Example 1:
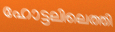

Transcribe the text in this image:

ഹോട്ടലിലെത്തി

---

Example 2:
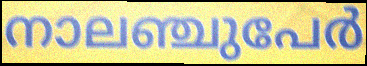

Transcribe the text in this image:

നാലഞ്ചുപേർ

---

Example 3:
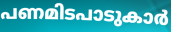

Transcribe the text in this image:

പണമിടപാടുകാർ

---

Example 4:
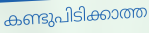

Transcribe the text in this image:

കണ്ടുപിടിക്കാത്ത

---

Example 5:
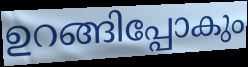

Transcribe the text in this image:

ഉറങ്ങിപ്പോകും